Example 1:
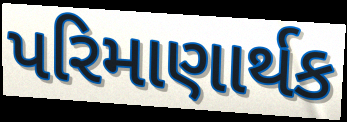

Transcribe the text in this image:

પરિમાણાર્થક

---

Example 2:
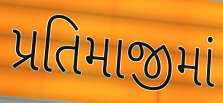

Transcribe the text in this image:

પ્રતિમાજીમાં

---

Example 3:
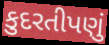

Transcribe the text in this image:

કુદરતીપણું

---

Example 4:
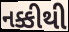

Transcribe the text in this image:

નક્કીથી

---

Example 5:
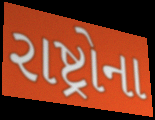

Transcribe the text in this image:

રાષ્ટ્રોના